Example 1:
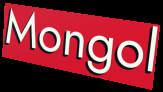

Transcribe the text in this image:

Mongol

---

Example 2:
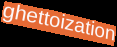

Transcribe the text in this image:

ghettoization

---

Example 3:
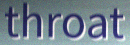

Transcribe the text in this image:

throat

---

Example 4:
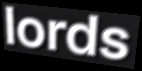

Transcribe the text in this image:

lords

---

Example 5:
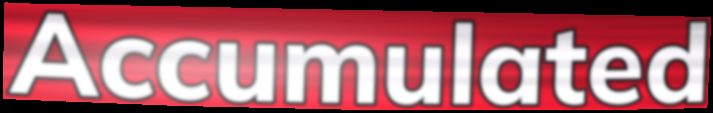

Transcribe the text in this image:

Accumulated